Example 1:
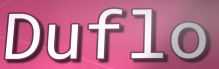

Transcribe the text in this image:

Duflo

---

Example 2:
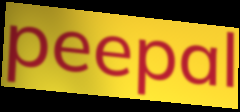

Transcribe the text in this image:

peepal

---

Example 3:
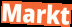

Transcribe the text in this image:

Markt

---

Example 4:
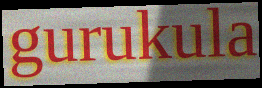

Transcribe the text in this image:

gurukula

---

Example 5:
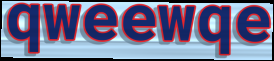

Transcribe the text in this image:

qweewqe